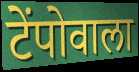
टेंपोवाला